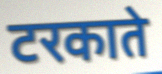
टरकाते